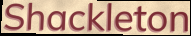
Shackleton